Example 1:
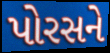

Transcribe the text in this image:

પોરસને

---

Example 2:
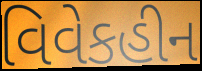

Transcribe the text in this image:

વિવેકહીન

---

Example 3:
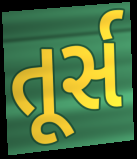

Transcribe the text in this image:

તૂર્સ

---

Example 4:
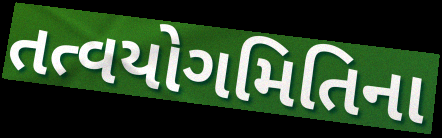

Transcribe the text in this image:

તત્વયોગમિતિના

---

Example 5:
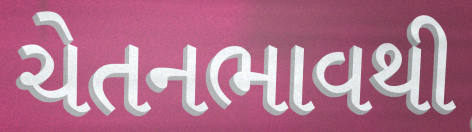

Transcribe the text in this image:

ચેતનભાવથી